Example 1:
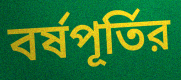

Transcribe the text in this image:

বর্ষপূর্তির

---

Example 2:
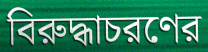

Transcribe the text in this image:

বিরুদ্ধাচরণের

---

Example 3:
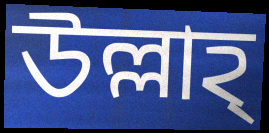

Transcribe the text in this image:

উল্লাহ্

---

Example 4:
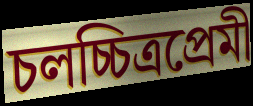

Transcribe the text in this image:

চলচ্চিত্রপ্রেমী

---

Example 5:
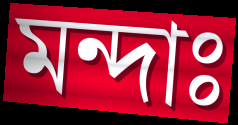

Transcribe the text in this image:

মন্দাঃ